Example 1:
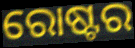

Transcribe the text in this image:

ରୋଷ୍ଟର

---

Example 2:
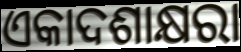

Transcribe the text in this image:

ଏକାଦଶାକ୍ଷରା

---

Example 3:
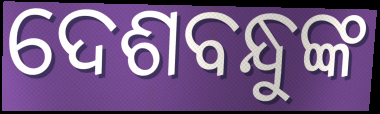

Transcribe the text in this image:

ଦେଶବନ୍ଧୁଙ୍କ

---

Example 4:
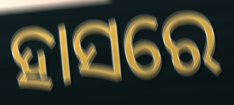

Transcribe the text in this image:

ହାସରେ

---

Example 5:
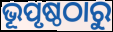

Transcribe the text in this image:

ଭୂପୃଷ୍ଠଠାରୁ